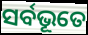
ସର୍ବଭୂତେ